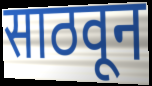
साठवून